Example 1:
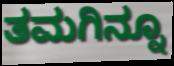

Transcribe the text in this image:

ತಮಗಿನ್ನೂ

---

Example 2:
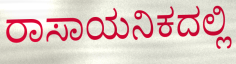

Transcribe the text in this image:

ರಾಸಾಯನಿಕದಲ್ಲಿ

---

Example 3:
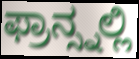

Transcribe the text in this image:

ಫ್ರಾನ್ಸ್ನಲ್ಲಿ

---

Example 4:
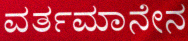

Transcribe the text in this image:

ವರ್ತಮಾನೇನ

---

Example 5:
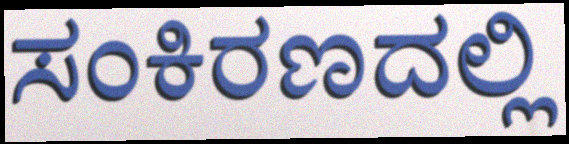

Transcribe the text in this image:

ಸಂಕಿರಣದಲ್ಲಿ